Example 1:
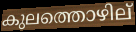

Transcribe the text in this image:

കുലത്തൊഴില്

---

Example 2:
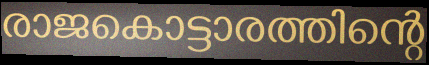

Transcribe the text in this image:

രാജകൊട്ടാരത്തിന്റെ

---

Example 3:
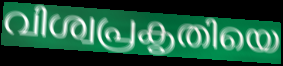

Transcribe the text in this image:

വിശ്വപ്രകൃതിയെ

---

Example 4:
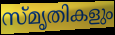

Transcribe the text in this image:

സ്മൃതികളും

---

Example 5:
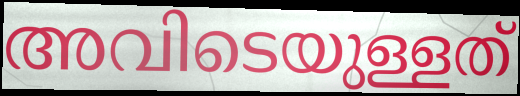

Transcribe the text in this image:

അവിടെയുള്ളത്